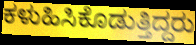
ಕಳುಹಿಸಿಕೊಡುತ್ತಿದ್ದರು